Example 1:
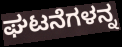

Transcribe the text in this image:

ಘಟನೆಗಳನ್ನ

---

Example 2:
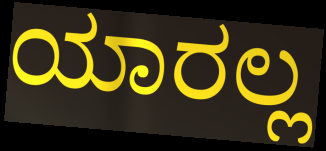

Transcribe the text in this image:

ಯಾರಲ್ಲ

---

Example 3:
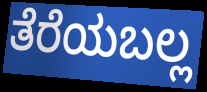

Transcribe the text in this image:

ತೆರೆಯಬಲ್ಲ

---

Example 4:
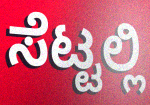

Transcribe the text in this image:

ಸೆಟ್ಟಲ್ಲಿ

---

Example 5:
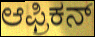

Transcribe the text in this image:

ಆಫ್ರಿಕನ್